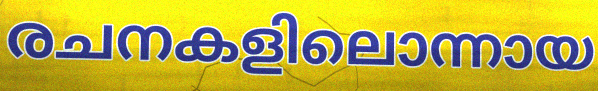
രചനകളിലൊന്നായ